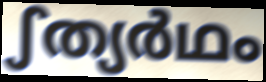
ഽത്യർഥം